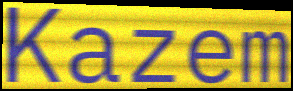
Kazem